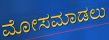
ಮೋಸಮಾಡಲು